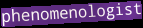
phenomenologist